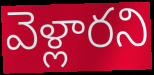
వెళ్లారని